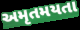
અમૃતમયતા